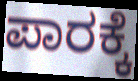
ಪಾರಕ್ಕೆ